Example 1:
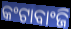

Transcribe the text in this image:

କଂଟାବାଂଜି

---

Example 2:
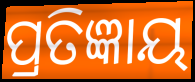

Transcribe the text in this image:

ପ୍ରତିଜ୍ଞାୟ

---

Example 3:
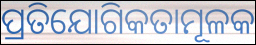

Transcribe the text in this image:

ପ୍ରତିଯୋଗିକତାମୂଳକ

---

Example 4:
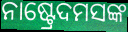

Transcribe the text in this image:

ନାଷ୍ଟ୍ରେଦମସଙ୍କ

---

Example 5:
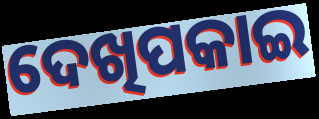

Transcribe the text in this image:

ଦେଖିପକାଇ